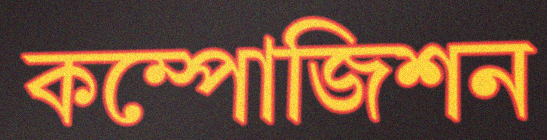
কম্পোজিশন